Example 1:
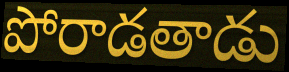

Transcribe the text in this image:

పోరాడతాడు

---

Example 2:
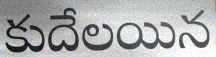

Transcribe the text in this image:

కుదేలయిన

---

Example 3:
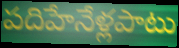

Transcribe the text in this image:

పదిహేనేళ్లపాటు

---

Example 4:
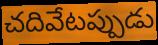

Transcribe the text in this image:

చదివేటప్పుడు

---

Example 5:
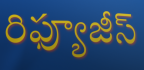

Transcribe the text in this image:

రిఫ్యూజీస్